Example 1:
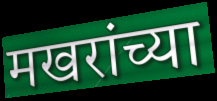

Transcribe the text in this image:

मखरांच्या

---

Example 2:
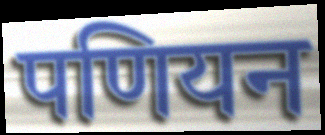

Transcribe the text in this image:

पणियन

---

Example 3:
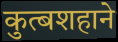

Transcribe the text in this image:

कुत्बशहाने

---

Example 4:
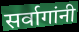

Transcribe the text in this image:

सर्वागांनी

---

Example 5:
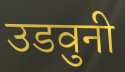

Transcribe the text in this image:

उडवुनी